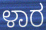
ಳಾರ